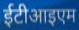
ईटीआइएम